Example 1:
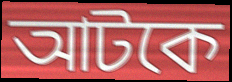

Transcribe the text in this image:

আটকে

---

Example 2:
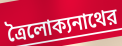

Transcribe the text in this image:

ত্রৈলোক্যনাথের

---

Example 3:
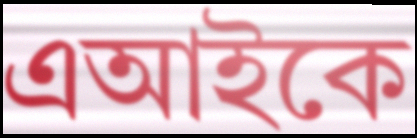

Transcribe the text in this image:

এআইকে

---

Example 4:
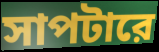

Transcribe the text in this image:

সাপটারে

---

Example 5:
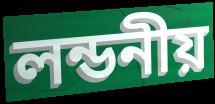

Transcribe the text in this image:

লন্ডনীয়